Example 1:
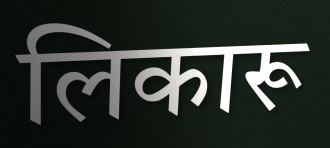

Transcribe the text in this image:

लिकारू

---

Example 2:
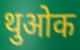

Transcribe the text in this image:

थुओक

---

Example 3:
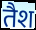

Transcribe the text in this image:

तैश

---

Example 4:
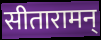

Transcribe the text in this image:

सीतारामन्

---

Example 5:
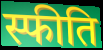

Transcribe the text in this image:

स्फीति